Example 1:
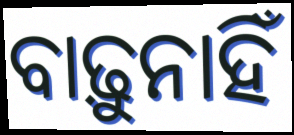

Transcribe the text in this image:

ବାଢ଼ୁନାହିଁ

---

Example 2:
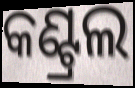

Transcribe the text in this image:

କଣ୍ଟ୍ରଲ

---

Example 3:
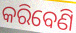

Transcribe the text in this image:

କରିବେଣି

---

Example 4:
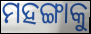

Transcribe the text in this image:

ମହଙ୍ଗାକୁ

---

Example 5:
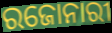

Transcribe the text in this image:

ରଜୋନାରୀ